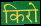
किरो